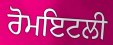
ਰੋਮਇਟਲੀ